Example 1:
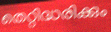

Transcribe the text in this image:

തെറ്റിദ്ധരിക്കും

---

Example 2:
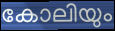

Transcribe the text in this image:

കോലിയും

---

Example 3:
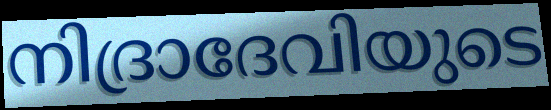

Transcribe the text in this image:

നിദ്രാദേവിയുടെ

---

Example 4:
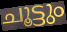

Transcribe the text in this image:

ചൂട്ടും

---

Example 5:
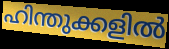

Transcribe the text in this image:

ഹിന്തുക്കളിൽ